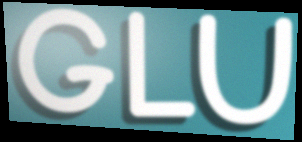
GLU